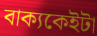
বাক্যকেইটা